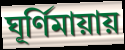
ঘূর্ণিমায়ায়